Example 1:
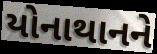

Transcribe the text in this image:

યોનાથાનને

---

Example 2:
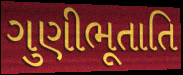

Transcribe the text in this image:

ગુણીભૂતાતિ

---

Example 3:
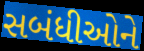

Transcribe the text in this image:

સબંધીઓને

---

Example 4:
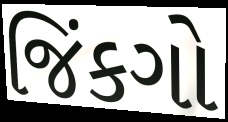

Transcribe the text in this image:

જિંકગો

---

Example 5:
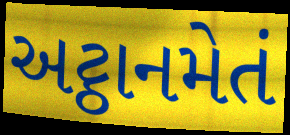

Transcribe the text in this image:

અટ્ઠાનમેતં